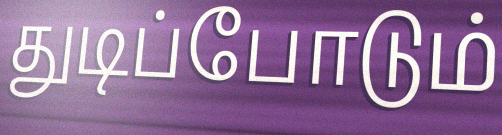
துடிப்போடும்